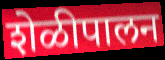
शेळीपालन